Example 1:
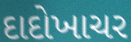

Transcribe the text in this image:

દાદોખાચર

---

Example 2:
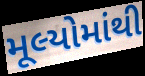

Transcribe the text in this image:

મૂલ્યોમાંથી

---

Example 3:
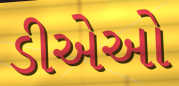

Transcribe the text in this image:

ડીએઓ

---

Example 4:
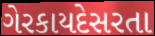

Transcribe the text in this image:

ગેરકાયદેસરતા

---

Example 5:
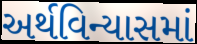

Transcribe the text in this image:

અર્થવિન્યાસમાં